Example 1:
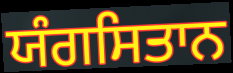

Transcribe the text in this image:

ਯੰਗਸਿਤਾਨ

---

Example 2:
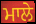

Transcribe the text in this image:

ਮਾਲੇ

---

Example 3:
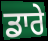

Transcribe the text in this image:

ਡਾਰੇ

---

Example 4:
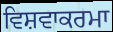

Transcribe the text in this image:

ਵਿਸ਼ਵਾਕਰਮਾ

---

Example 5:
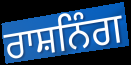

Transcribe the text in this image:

ਰਾਸ਼ਨਿੰਗ